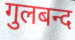
गुलबन्द